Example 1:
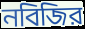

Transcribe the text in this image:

নবিজির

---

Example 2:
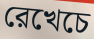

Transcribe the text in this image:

রেখেচে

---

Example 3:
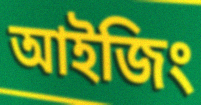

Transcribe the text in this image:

আইজিং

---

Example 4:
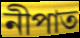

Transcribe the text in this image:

নীপাত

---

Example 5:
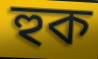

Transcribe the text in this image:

হুক